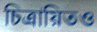
চিত্রায়িতও